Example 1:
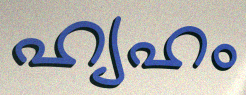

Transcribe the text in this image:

ഹ്യഹം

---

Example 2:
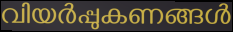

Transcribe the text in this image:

വിയർപ്പുകണങ്ങൾ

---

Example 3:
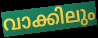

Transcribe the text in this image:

വാക്കിലും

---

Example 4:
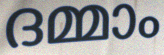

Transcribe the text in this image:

ദമ്മാം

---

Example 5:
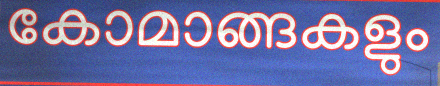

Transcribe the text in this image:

കോമാങ്ങകളും